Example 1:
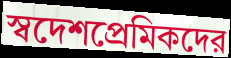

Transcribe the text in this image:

স্বদেশপ্রেমিকদের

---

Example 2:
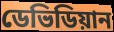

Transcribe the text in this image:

ডেভিডিয়ান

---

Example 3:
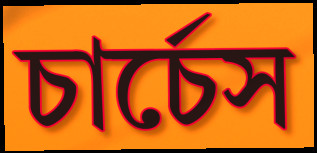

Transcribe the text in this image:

চার্চেস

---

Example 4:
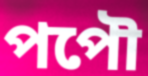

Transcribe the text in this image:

পপৌ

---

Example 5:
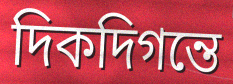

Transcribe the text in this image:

দিকদিগন্তে